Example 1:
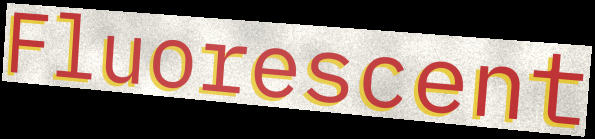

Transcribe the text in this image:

Fluorescent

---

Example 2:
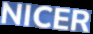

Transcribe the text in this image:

NICER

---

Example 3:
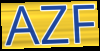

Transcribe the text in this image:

AZF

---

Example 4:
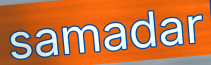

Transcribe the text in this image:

samadar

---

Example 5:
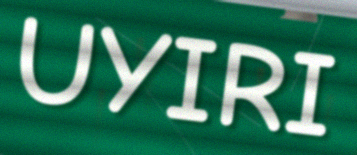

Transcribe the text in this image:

UYIRI